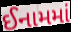
ઈનામમાં